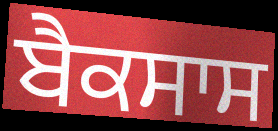
ਬੈਕਸਾਸ